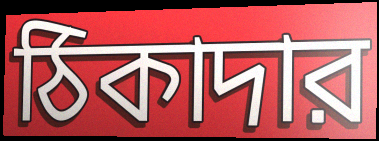
ঠিকাদার